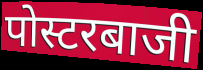
पोस्टरबाजी